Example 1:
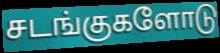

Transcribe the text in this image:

சடங்குகளோடு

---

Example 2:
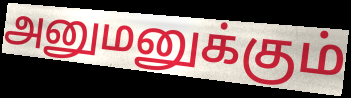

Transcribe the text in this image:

அனுமனுக்கும்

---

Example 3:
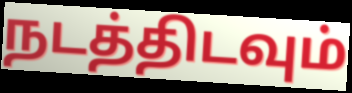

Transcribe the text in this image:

நடத்திடவும்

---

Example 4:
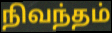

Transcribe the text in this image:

நிவந்தம்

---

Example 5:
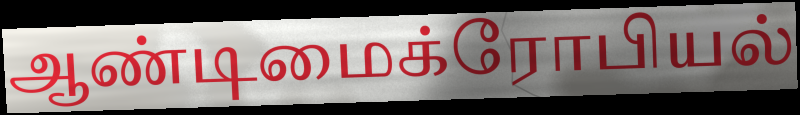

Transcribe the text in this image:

ஆண்டிமைக்ரோபியல்